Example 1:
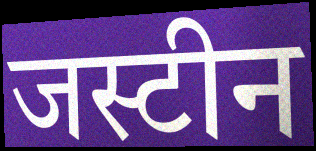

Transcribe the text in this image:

जस्टीन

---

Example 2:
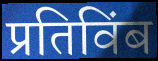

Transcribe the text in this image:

प्रतिविंब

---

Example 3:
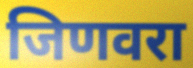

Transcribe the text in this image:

जिणवरा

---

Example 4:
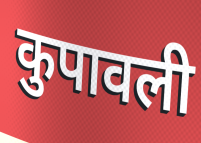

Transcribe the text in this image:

कुपावली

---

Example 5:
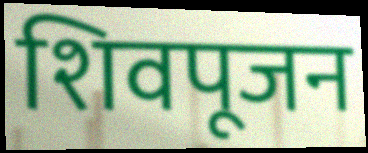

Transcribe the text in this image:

शिवपूजन